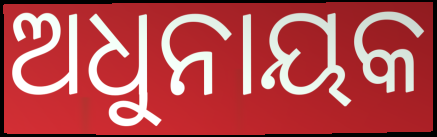
ଅଧୁନାୟକ